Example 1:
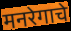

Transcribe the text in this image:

मनरेगाचे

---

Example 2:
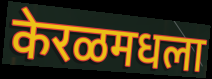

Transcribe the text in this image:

केरळमधला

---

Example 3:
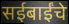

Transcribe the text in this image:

सईबाईंचे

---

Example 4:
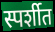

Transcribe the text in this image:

स्पर्शीत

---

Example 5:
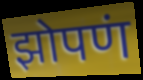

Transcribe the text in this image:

झोपणं